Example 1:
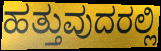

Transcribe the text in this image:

ಹತ್ತುವುದರಲ್ಲಿ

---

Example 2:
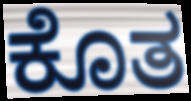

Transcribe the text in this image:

ಕೊತ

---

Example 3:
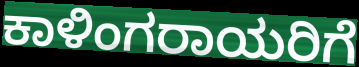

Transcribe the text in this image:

ಕಾಳಿಂಗರಾಯರಿಗೆ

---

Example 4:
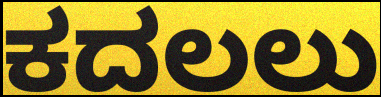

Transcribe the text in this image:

ಕದಲಲು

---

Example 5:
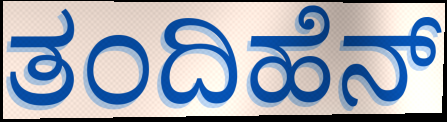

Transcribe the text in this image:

ತಂದಿಹೆನ್